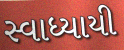
સ્વાધ્યાયી